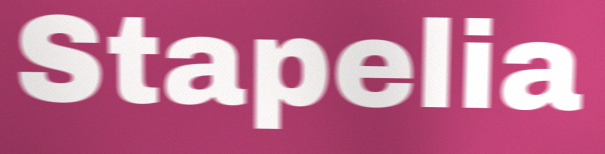
Stapelia